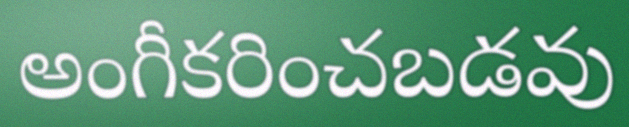
అంగీకరించబడవు